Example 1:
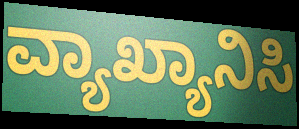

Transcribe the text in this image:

ವ್ಯಾಖ್ಯಾನಿಸಿ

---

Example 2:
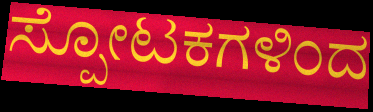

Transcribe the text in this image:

ಸ್ಪೋಟಕಗಳಿಂದ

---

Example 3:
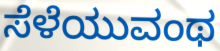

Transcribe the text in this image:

ಸೆಳೆಯುವಂಥ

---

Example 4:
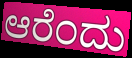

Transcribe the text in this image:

ಆರೆಂದು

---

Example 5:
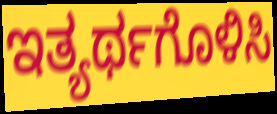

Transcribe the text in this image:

ಇತ್ಯರ್ಥಗೊಳಿಸಿ